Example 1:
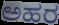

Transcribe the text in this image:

ಅಹರ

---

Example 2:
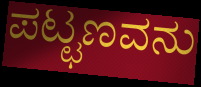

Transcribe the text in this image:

ಪಟ್ಟಣವನು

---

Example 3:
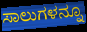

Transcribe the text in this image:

ಸಾಲುಗಳನ್ನೂ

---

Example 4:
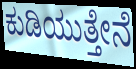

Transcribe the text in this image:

ಕುಡಿಯುತ್ತೇನೆ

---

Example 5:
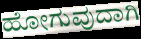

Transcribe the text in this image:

ಹೋಗುವುದಾಗಿ